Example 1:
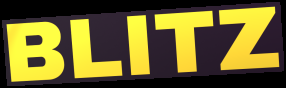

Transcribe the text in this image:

BLITZ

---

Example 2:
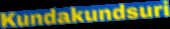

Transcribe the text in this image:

Kundakundsuri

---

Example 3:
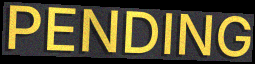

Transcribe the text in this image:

PENDING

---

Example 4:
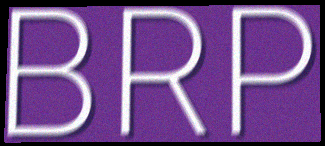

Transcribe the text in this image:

BRP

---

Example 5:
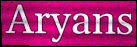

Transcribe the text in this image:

Aryans